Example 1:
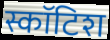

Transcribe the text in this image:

स्कॉटिश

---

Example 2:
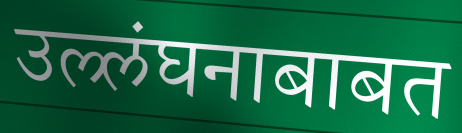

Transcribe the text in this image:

उल्लंघनाबाबत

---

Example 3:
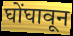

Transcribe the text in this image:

घोंघावून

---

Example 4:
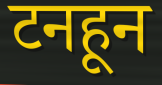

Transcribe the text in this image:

टनहून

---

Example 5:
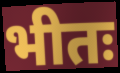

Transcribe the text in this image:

भीतः